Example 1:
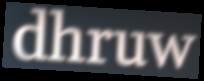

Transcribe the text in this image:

dhruw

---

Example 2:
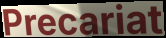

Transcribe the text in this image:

Precariat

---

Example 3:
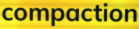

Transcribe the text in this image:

compaction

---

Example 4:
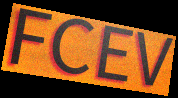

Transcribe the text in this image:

FCEV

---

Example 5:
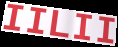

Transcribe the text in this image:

IILII